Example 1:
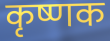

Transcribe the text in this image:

कृष्णक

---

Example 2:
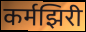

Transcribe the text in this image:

कर्मझिरी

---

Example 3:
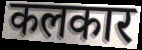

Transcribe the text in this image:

कलकार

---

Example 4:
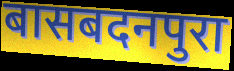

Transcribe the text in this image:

बासबदनपुरा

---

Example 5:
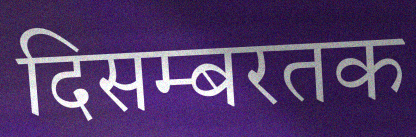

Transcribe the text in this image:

दिसम्बरतक